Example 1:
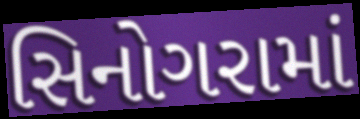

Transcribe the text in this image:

સિનોગરામાં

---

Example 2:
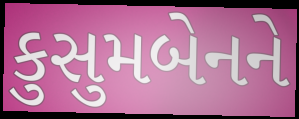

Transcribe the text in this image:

કુસુમબેનને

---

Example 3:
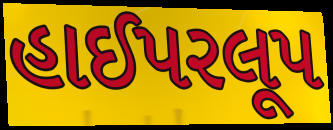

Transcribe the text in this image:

હાઈપરલૂપ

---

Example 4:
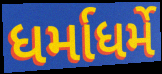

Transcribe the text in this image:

ધર્માધર્મે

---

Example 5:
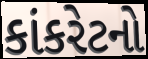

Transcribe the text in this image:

કાંકરેટનો